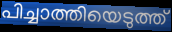
പിച്ചാത്തിയെടുത്ത്